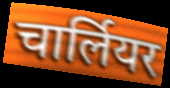
चार्लियर